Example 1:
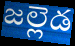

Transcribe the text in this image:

జల్లెడ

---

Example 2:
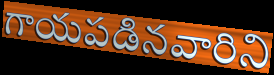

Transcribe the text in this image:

గాయపడినవారిని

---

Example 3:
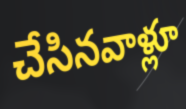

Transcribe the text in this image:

చేసినవాళ్లూ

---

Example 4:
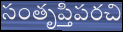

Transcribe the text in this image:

సంతృప్తిపరచి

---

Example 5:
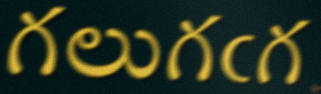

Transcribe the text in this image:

గలుగఁగ